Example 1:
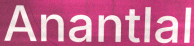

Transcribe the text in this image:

Anantlal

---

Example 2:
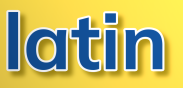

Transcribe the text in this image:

latin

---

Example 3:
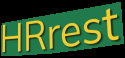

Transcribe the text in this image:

HRrest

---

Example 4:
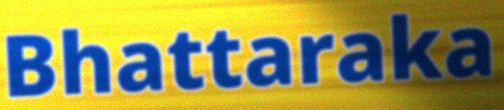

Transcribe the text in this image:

Bhattaraka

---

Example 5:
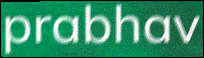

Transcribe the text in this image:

prabhav